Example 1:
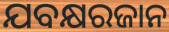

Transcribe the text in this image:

ଯବକ୍ଷରଜାନ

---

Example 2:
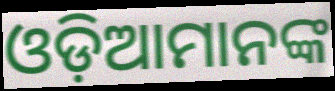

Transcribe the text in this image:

ଓଡ଼ିଆମାନଙ୍କ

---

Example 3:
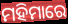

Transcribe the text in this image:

ମହିମାରେ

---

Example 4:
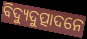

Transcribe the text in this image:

ବିଦ୍ଯୁଦୁତ୍ପାଦନେ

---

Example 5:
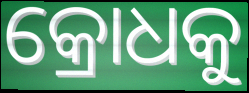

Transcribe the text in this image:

କ୍ରୋଧକୁ